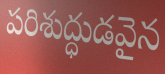
పరిశుద్ధుడవైన